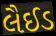
લૈઈડ